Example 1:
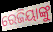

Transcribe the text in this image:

ରେଜିୟାଙ୍କୁ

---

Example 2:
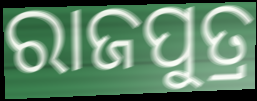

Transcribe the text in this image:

ରାଜପୁତ୍ର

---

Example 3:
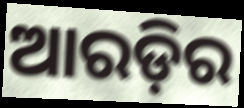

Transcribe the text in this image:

ଆରଡ଼ିର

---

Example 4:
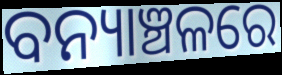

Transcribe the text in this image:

ବନ୍ୟାଞ୍ଚଳରେ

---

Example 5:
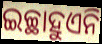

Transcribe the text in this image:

ଇଚ୍ଛାହୁଏନି